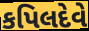
કપિલદેવે